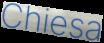
Chiesa